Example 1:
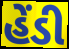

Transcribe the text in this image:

હેંડી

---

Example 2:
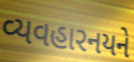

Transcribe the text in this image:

વ્યવહારનયને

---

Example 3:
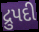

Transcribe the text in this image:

દ્રુપદી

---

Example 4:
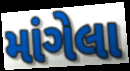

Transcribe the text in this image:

માંગેલા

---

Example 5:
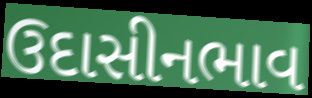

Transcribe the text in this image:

ઉદાસીનભાવ